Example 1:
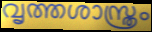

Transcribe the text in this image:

വൃത്തശാസ്ത്രം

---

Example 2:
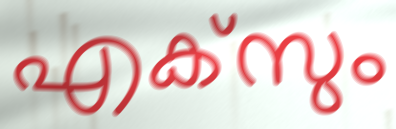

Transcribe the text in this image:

എക്‌സും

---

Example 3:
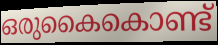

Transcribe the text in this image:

ഒരുകൈകൊണ്ട്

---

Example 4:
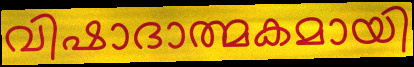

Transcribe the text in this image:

വിഷാദാത്മകമായി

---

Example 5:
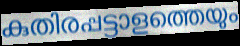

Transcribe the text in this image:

കുതിരപ്പട്ടാളത്തെയും